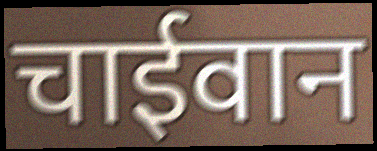
चाईवान